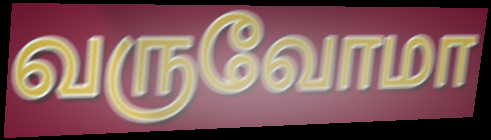
வருவோமா